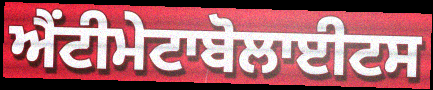
ਐਂਟੀਮੇਟਾਬੋਲਾਈਟਸ